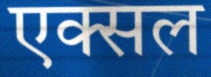
एक्सल